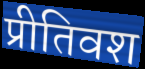
प्रीतिवश